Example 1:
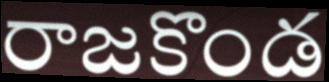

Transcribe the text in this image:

రాజకొండ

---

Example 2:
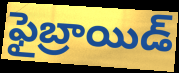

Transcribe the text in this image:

ఫైబ్రాయిడ్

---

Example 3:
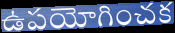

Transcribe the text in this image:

ఉపయోగించక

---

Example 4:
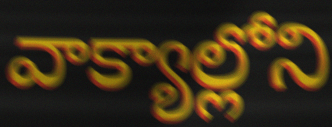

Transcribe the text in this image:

వాక్యాల్లోని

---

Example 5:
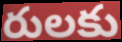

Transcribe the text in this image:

రులకు